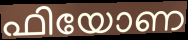
ഫിയോണ